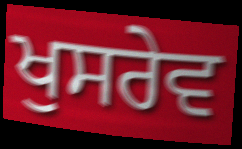
ਖੁਸਰੇਵ